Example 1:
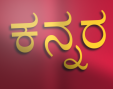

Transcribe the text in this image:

ಕನ್ನರ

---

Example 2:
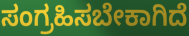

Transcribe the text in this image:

ಸಂಗ್ರಹಿಸಬೇಕಾಗಿದೆ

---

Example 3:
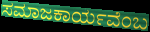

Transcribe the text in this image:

ಸಮಾಜಕಾರ್ಯವೆಂಬ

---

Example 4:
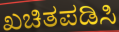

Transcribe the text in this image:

ಖಚಿತಪಡಿಸಿ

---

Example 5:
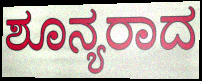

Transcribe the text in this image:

ಶೂನ್ಯರಾದ